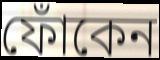
ফোঁকেন